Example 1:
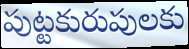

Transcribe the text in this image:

పుట్టకురుపులకు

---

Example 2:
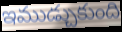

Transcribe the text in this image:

ఇముడ్చుకుంది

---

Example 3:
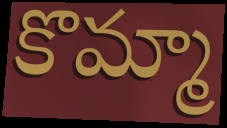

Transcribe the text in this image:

కొమ్మా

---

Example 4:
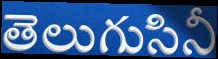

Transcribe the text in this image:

తెలుగుసినీ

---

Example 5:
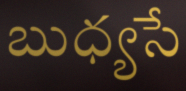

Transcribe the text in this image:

బుధ్యసే